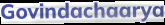
Govindachaarya